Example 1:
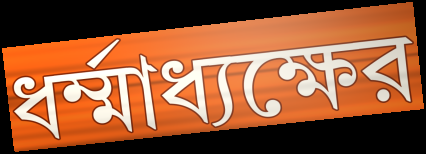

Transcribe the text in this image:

ধর্ম্মাধ্যক্ষের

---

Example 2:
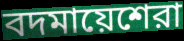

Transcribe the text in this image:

বদমায়েশেরা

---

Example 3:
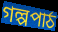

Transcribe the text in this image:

গল্পপাঠ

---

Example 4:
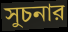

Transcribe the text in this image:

সুচনার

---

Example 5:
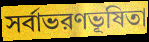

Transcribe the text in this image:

সর্বাভরণভূষিতা